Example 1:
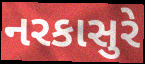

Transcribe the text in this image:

નરકાસુરે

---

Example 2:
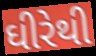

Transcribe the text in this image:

ઘીરેથી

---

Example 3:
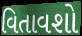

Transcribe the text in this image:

વિતાવશો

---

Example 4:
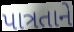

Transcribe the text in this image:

પાત્રતાને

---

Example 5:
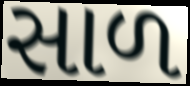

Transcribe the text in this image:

સાળ